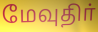
மேவுதிர்